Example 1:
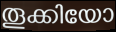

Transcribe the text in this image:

തൂക്കിയോ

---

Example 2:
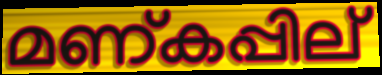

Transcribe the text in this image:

മണ്കപ്പില്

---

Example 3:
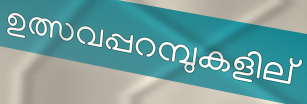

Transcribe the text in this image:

ഉത്സവപ്പറമ്പുകളില്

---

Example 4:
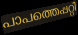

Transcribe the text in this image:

പാപത്തെപ്പറ്റി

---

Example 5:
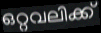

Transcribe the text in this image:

ഒറ്റവലിക്ക്